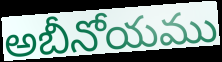
అబీనోయము